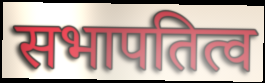
सभापतित्व